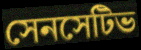
সেনসেটিভ